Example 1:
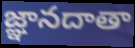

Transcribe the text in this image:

జ్ఞానదాతా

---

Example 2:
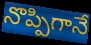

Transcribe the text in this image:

నొప్పిగానే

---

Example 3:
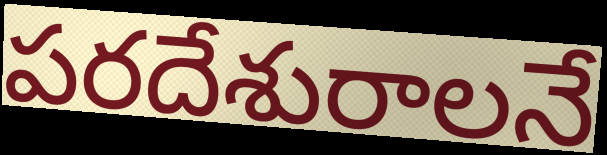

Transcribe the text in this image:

పరదేశురాలనే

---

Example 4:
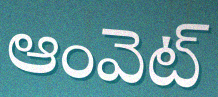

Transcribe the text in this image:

ఆంవెట్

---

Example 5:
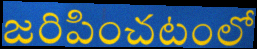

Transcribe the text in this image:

జరిపించటంలో